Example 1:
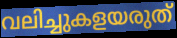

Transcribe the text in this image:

വലിച്ചുകളയരുത്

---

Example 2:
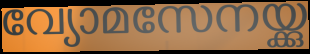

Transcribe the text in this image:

വ്യോമസേനയ്ക്കു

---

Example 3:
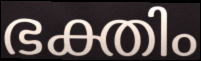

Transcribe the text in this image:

ഭക്തിം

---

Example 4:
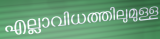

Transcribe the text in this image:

എല്ലാവിധത്തിലുമുള്ള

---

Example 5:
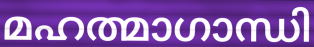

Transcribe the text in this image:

മഹത്മാഗാന്ധി